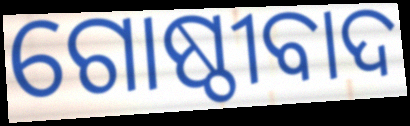
ଗୋଷ୍ଠୀବାଦ